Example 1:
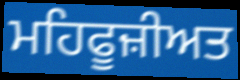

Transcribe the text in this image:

ਮਹਿਫੂਜ਼ੀਅਤ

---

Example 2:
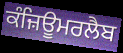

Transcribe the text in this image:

ਕੰਜ਼ਿਊਮਰਲੈਬ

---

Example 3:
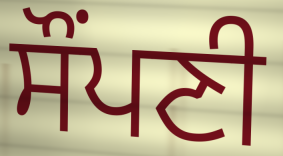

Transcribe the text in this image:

ਸੌਂਪਣੀ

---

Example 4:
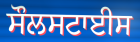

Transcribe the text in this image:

ਸੌਲਸਟਾਈਸ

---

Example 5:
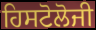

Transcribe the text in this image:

ਹਿਸਟੋਲੋਜੀ